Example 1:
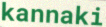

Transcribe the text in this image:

kannaki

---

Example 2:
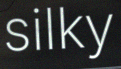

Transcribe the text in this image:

silky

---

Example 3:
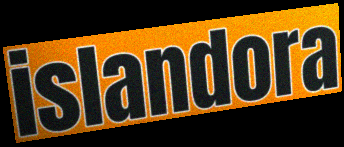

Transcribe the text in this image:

islandora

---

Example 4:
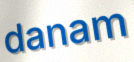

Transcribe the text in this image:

danam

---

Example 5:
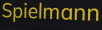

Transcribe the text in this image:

Spielmann